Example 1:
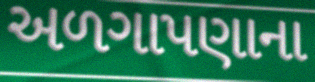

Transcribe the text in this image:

અળગાપણાના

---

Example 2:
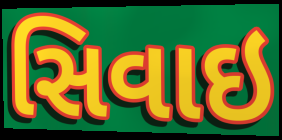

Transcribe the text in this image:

સિવાઇ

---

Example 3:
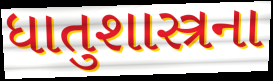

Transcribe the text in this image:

ધાતુશાસ્ત્રના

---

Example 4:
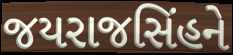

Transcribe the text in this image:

જયરાજસિંહને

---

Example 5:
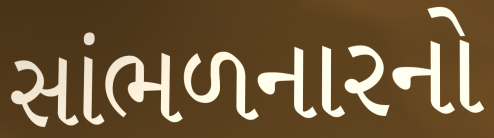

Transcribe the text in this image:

સાંભળનારનો